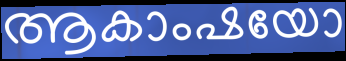
ആകാംഷയോ